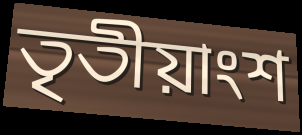
তৃতীয়াংশ